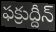
ఫక్రుద్దీన్